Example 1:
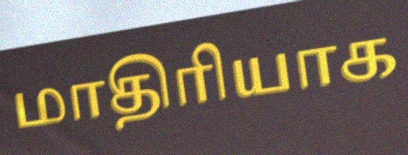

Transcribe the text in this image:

மாதிரியாக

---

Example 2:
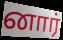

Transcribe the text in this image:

னார்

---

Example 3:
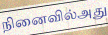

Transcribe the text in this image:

நினைவில்அது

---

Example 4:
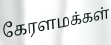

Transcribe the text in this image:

கேரளமக்கள்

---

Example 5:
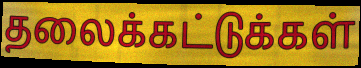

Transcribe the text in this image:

தலைக்கட்டுக்கள்